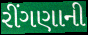
રીંગણાની